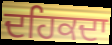
ਦਹਿਕਦਾ